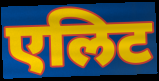
एलिट